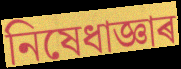
নিষেধাজ্ঞাৰ